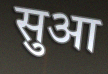
सुआ